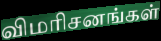
விமரிசனங்கள்